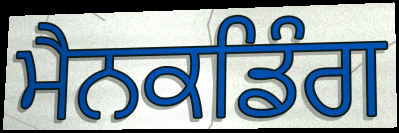
ਮੈਨਕਡਿੰਗ